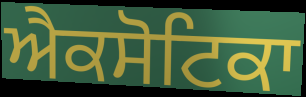
ਐਕਸੋਟਿਕਾ